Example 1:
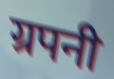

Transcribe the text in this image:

ग्रपनी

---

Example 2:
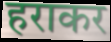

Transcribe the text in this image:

हराकर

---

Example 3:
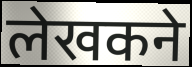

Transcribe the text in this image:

लेखकने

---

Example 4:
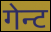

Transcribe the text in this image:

गेन्ट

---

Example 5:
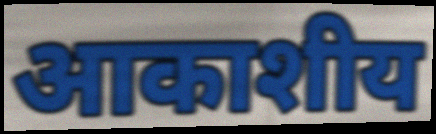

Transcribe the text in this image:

आकाशीय